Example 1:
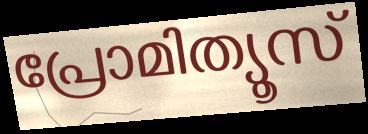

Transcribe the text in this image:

പ്രോമിത്യൂസ്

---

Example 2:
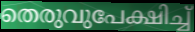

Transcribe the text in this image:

തെരുവുപേക്ഷിച്ച്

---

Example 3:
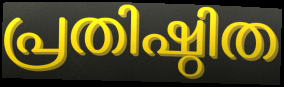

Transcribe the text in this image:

പ്രതിഷ്ഠിത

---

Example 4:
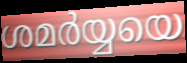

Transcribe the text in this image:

ശമർയ്യയെ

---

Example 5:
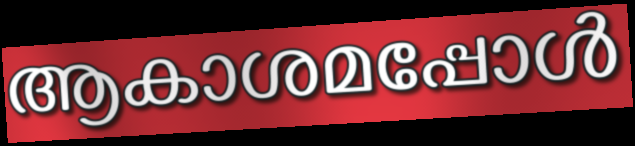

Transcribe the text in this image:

ആകാശമപ്പോൾ